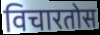
विचारतोस